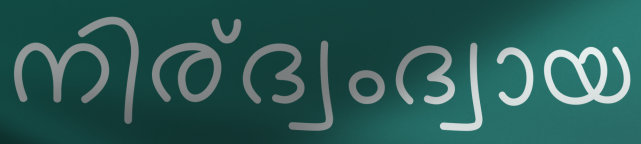
നിര്ദ്വംദ്വായ